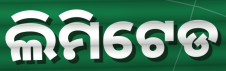
ଲିମିଟେଡ